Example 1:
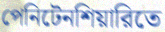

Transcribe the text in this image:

পেনিটেনশিয়ারিতে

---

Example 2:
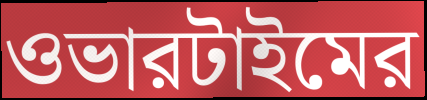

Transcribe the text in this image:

ওভারটাইমের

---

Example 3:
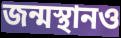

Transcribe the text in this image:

জন্মস্থানও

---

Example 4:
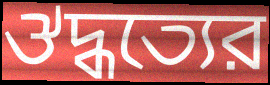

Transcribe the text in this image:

ঔদ্ধত্যের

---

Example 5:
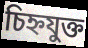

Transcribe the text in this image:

চিহ্নযুক্ত